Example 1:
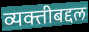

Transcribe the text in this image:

व्यक्तीबद्दल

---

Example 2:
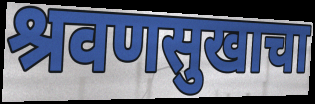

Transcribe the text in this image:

श्रवणसुखाचा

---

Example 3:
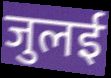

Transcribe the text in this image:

जुलई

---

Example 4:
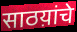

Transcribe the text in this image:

साठय़ांचे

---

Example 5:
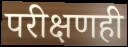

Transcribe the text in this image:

परीक्षणही